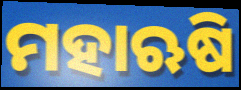
ମହାଋଷି